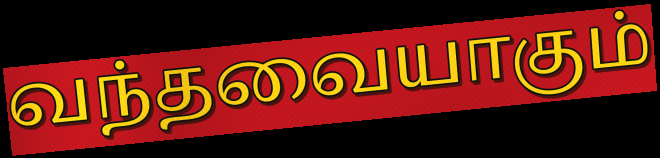
வந்தவையாகும்